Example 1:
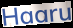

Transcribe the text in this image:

Haaru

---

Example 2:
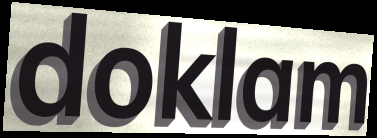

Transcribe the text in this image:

doklam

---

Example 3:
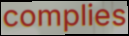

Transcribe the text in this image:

complies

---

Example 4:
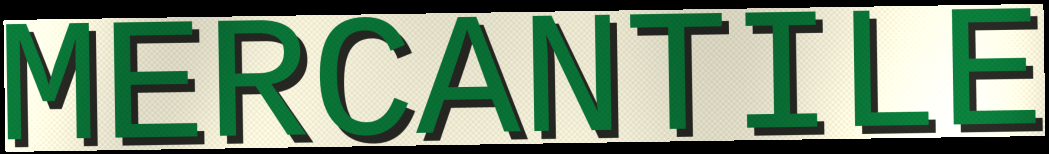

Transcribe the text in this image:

MERCANTILE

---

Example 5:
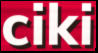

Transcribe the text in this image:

ciki